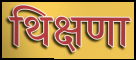
थिक्षणा